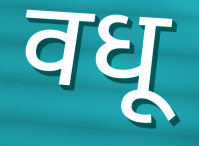
वधू